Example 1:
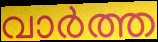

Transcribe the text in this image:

വാർത്ത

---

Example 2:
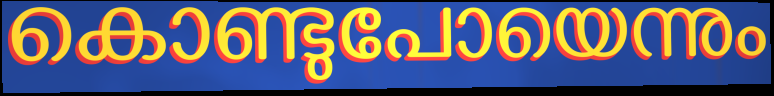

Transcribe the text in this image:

കൊണ്ടുപോയെന്നും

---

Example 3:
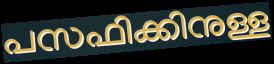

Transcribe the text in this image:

പസഫിക്കിനുള്ള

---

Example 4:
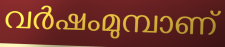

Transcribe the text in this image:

വർഷംമുമ്പാണ്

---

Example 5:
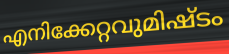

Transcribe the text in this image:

എനിക്കേറ്റവുമിഷ്ടം